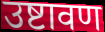
उष्टावण